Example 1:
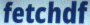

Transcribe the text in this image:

fetchdf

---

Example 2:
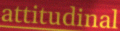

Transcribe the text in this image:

attitudinal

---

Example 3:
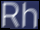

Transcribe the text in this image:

Rh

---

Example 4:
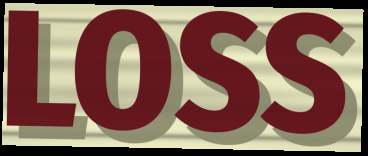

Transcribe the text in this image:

LOSS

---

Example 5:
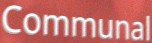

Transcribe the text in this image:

Communal